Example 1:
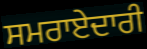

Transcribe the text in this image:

ਸਮਰਾਏਦਾਰੀ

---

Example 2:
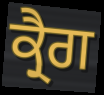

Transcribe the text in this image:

ਕ੍ਰੈਗ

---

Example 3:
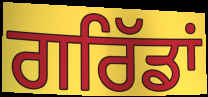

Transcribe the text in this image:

ਗਰਿੱਡਾਂ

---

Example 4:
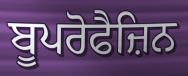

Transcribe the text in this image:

ਬੂਪਰੋਫੈਜ਼ਿਨ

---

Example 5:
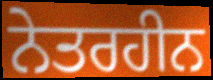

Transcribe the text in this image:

ਨੇਤਰਹੀਨ